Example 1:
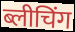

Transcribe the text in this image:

ब्‍लीचिंग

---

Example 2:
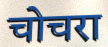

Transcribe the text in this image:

चोचरा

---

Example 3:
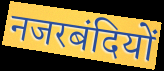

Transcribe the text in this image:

नजरबंदियों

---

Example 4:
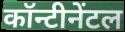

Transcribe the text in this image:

कॉन्टीनेंटल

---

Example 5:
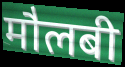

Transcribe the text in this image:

मौलबी